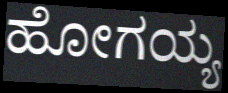
ಹೋಗಯ್ಯ